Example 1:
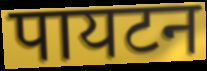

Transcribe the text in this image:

पायटन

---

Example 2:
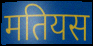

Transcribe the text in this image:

मतियस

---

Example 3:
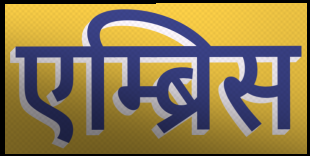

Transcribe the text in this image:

एम्ब्रिस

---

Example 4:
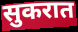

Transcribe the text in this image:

सुकरात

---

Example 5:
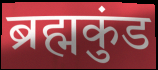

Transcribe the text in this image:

ब्रह्मकुंड